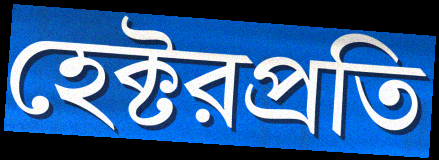
হেক্টরপ্রতি